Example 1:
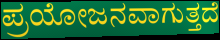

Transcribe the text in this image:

ಪ್ರಯೋಜನವಾಗುತ್ತದೆ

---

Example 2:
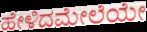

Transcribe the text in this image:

ಹೇಳಿದಮೇಲೆಯೇ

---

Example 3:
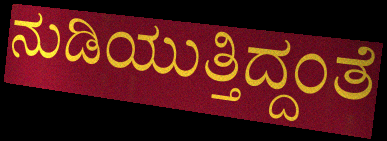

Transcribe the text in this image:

ನುಡಿಯುತ್ತಿದ್ದಂತೆ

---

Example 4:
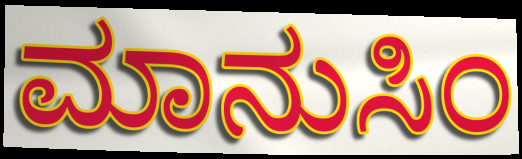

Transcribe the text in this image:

ಮಾನುಸಿಂ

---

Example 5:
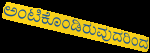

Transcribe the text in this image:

ಅಂಟಿಕೊಂಡಿರುವುದರಿಂದ